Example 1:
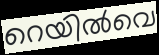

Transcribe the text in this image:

റെയിൽവെ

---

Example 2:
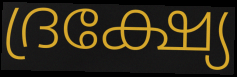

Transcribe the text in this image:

ദ്രക്ഷ്യേ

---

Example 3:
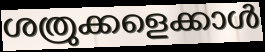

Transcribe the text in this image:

ശത്രുക്കളെക്കാൾ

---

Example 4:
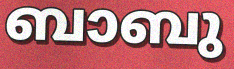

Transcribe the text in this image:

ബാബു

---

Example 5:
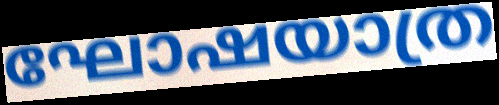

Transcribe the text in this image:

ഘോഷയാത്ര